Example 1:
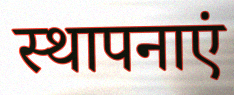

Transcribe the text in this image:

स्थापनाएं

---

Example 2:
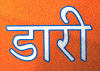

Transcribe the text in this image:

डारी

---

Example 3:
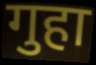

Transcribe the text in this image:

गुहा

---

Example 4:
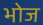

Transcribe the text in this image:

भोज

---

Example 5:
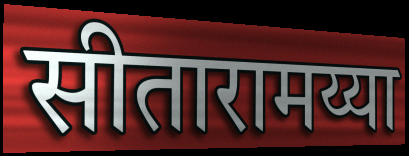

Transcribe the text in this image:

सीतारामय्या